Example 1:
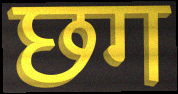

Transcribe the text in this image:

छग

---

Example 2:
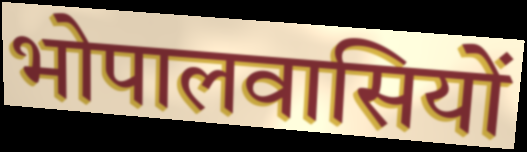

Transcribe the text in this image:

भोपालवासियों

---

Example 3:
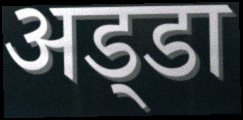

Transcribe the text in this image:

अड्‌डा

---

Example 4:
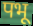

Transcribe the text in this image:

पभू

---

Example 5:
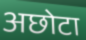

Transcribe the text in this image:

अछोटा